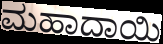
ಮಹಾದಾಯಿ